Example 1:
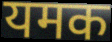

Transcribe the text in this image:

यमक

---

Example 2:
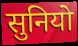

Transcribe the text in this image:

सुनियो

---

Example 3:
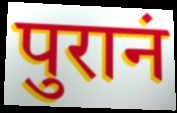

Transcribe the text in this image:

पुरानं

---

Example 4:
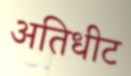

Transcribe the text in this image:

अतिधीट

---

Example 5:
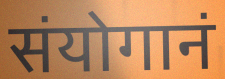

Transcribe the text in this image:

संयोगानं